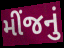
મીંજનું